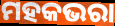
ମହକଭରା